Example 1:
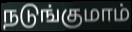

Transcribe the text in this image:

நடுங்குமாம்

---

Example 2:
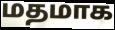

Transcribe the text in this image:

மதமாக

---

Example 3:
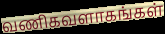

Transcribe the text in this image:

வணிகவளாகங்கள்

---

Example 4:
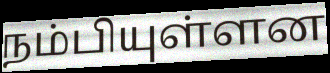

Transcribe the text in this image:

நம்பியுள்ளன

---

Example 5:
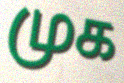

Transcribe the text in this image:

முக